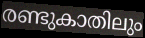
രണ്ടുകാതിലും